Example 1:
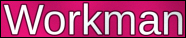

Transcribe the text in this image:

Workman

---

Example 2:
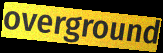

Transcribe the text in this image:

overground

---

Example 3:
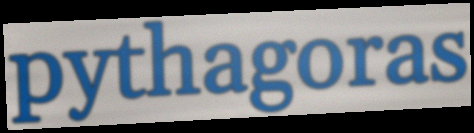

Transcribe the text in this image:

pythagoras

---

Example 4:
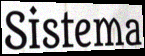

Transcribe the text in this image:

Sistema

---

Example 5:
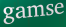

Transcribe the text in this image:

gamse